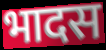
भादस